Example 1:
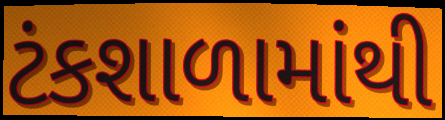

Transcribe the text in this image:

ટંકશાળામાંથી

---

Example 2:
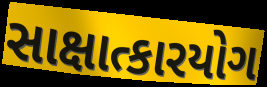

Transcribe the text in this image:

સાક્ષાત્કારયોગ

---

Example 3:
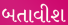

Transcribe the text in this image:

બતાવીશ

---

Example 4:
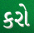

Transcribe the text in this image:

કરો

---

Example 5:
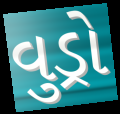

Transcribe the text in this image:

વુડ્રો